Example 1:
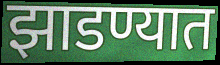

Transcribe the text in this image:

झाडण्यात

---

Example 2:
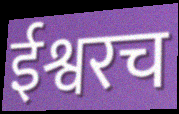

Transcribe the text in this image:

ईश्वरच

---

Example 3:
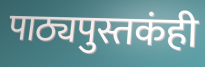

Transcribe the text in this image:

पाठ्यपुस्तकंही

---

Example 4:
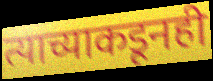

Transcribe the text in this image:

त्याच्याकडूनही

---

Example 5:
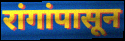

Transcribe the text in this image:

रांगांपासून